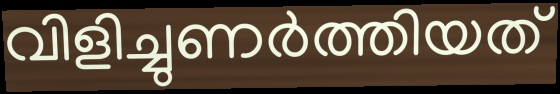
വിളിച്ചുണർത്തിയത്